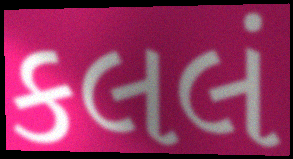
કલલં